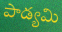
పాడ్యమి